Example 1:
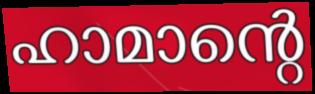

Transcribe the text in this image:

ഹാമാന്റെ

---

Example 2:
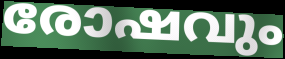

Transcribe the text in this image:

രോഷവും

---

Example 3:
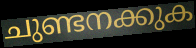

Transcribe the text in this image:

ചുണ്ടനക്കുക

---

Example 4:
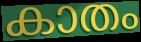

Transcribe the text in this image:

കാതം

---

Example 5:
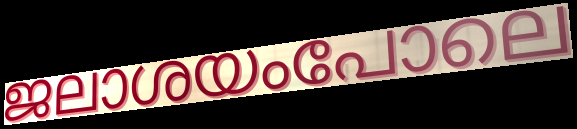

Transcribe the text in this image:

ജലാശയംപോലെ